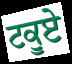
ਟਕੂਏ